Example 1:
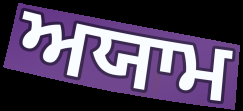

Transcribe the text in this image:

ਅਯਾਮ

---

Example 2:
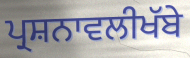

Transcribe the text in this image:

ਪ੍ਰਸ਼ਨਾਵਲੀਖੱਬੇ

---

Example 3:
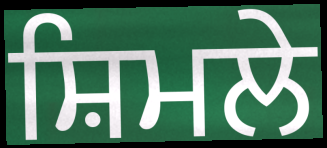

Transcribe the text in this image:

ਸ਼ਿਮਲੇ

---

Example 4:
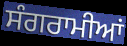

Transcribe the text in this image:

ਸੰਗਰਾਮੀਆਂ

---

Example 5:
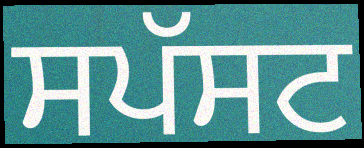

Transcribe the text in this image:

ਸਪੱਸਟ